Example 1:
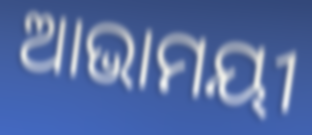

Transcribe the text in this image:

ଆଭାମୟୀ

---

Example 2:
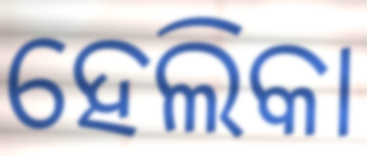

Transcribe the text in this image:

ହେଲିକା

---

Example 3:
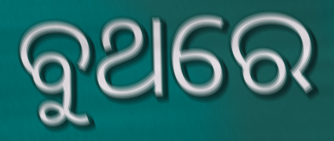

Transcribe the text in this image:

ବୁଥରେ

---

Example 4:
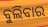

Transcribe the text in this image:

ବୁଲିବାର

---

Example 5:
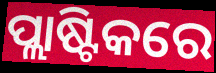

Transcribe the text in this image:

ପ୍ଲାଷ୍ଟିକରେ